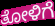
ತೋಳಿಗೆ